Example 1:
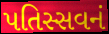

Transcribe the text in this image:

પતિસ્સવનં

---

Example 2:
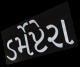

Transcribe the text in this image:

ડર્મેપ્ટેરા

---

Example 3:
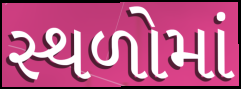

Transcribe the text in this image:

સ્‍થળોમાં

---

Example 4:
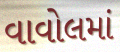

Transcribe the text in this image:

વાવોલમાં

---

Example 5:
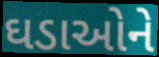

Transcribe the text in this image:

ઘડાઓને